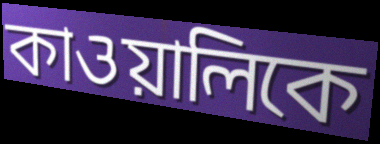
কাওয়ালিকে